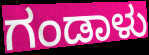
ಗಂಡಾಳು